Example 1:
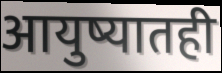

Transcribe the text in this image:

आयुष्यातही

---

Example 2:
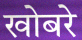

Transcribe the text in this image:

खोबरे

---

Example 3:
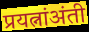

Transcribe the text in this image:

प्रयत्नांअंती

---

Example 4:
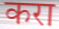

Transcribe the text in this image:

करा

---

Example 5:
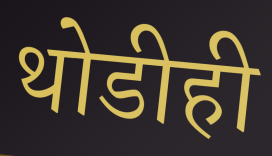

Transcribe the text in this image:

थोडीही